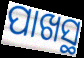
ପାଖସ୍ଥ